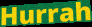
Hurrah